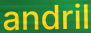
andril